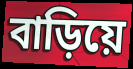
বাড়িয়ে